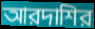
আরদাশির